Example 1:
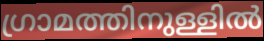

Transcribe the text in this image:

ഗ്രാമത്തിനുള്ളിൽ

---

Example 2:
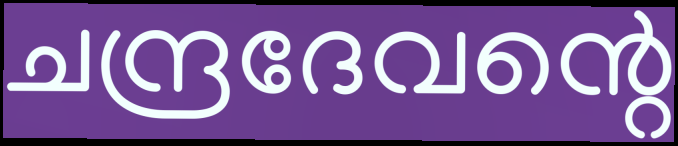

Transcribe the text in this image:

ചന്ദ്രദേവന്റെ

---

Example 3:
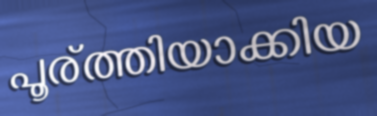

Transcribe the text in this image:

പൂര്ത്തിയാക്കിയ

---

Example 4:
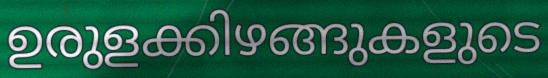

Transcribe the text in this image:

ഉരുളക്കിഴങ്ങുകളുടെ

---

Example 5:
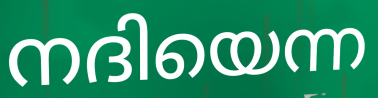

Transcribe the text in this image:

നദിയെന്ന